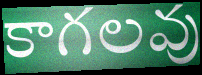
కాగలవు